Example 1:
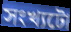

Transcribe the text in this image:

সংখ্যটো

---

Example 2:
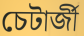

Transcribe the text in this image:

চেটাৰ্জী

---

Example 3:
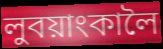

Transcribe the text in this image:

লুবয়াংকালৈ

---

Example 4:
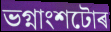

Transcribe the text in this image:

ভগ্নাংশটোৰ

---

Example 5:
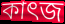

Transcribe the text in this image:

কাৎজ